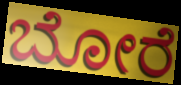
ಬೋರೆ